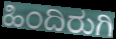
ಹಿಂದಿರುಗಿ